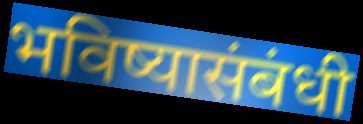
भविष्यासंबंधी